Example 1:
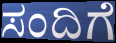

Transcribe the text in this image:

ಸಂದಿಗೆ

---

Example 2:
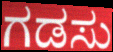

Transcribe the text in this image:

ಗಡಸು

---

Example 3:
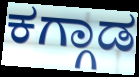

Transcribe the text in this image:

ಕಗ್ಗಾಡ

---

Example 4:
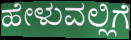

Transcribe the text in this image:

ಹೇಳುವಲ್ಲಿಗೆ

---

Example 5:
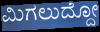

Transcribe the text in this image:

ಮಿಗಲುದ್ದೋ